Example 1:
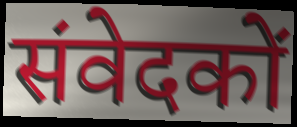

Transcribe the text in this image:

संवेदकों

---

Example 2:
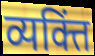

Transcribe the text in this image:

व्यक्तिं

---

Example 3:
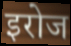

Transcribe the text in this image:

इरोज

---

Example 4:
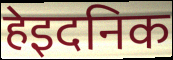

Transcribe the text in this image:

हेइदनिक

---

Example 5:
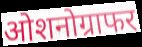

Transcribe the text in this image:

ओशनोग्राफर